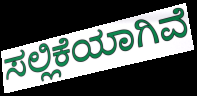
ಸಲ್ಲಿಕೆಯಾಗಿವೆ